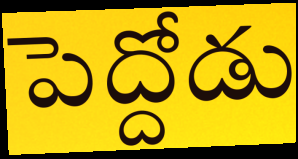
పెద్దోడు